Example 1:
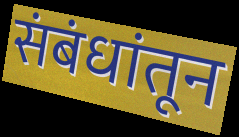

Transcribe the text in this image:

संबंधांतून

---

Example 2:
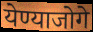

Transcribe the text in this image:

येण्याजोगे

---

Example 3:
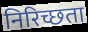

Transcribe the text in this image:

निरिच्छता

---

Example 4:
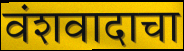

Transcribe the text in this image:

वंशवादाचा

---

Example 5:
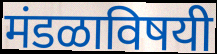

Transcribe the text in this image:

मंडळाविषयी